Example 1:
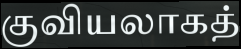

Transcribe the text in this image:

குவியலாகத்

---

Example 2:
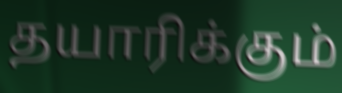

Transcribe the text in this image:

தயாரிக்கும்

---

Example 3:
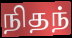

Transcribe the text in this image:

நிதந்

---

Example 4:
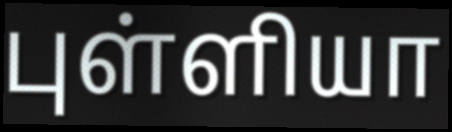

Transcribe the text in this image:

புள்ளியா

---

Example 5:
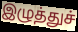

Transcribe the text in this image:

இழுத்துச்